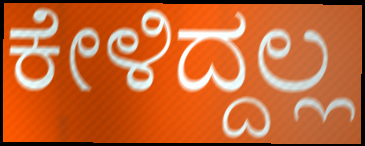
ಕೇಳಿದ್ದಲ್ಲ